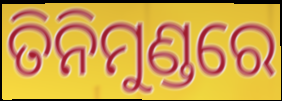
ତିନିମୁଣ୍ଡରେ